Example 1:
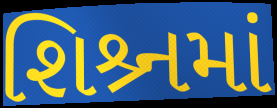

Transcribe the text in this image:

શિશ્ર્નમાં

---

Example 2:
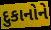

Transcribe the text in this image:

દુકાનોને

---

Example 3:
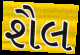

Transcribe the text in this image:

શૈલ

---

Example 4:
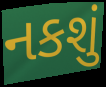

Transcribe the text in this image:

નકશું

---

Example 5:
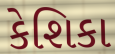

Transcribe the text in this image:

કેશિકા